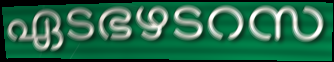
ഏടഭഴടറസ